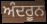
ਅੰਦਰੂਨ